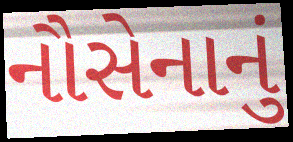
નૌસેનાનું